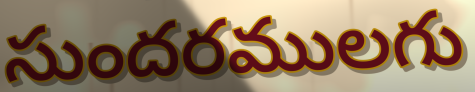
సుందరములగు